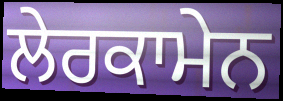
ਲੇਰਕਾਮੇਨ